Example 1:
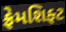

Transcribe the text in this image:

ફ્રેમશિફ્ટ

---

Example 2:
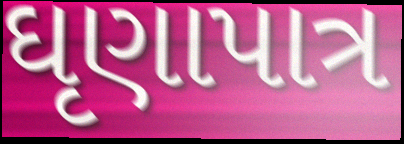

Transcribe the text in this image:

ઘૃણાપાત્ર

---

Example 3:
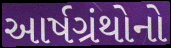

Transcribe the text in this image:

આર્ષગ્રંથોનો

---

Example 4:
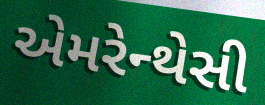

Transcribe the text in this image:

એમરેન્થેસી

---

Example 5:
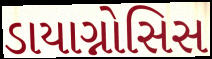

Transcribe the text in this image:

ડાયાગ્નોસિસ